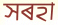
সৰহা